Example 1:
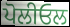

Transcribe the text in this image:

ਪੋਲੀਓਲ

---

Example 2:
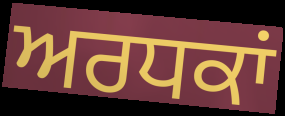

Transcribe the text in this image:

ਅਰਧਕਾਂ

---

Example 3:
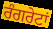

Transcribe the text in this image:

ਰੰਗਰੇਟਾਂ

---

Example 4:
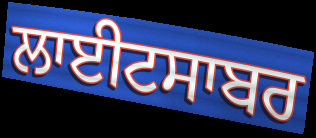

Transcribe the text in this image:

ਲਾਈਟਸਾਬਰ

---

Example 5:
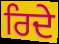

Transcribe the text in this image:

ਰਿਦੇ